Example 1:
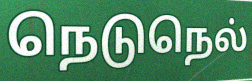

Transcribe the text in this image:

நெடுநெல்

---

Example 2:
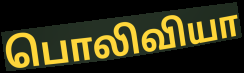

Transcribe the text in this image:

பொலிவியா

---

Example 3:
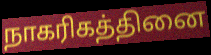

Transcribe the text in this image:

நாகரிகத்தினை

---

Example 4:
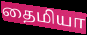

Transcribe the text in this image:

தைமியா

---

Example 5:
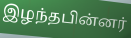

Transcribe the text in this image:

இழந்தபின்னர்